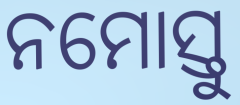
ନମୋସ୍ତୁ